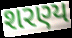
શરણ્ય